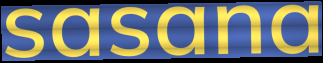
sasana